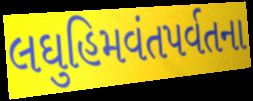
લઘુહિમવંતપર્વતના